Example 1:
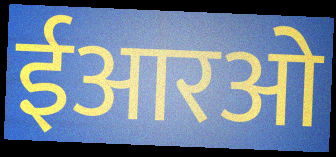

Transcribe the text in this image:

ईआरओ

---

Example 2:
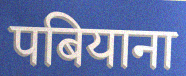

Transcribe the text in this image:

पबियाना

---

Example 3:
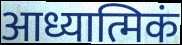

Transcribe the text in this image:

आध्यात्मिकं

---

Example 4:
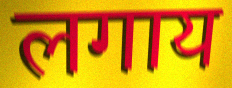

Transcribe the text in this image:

लगाय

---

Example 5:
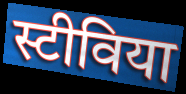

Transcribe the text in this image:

स्टीविया